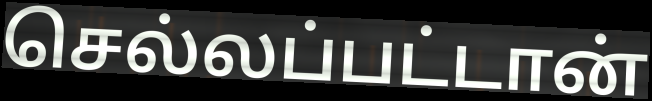
செல்லப்பட்டான்